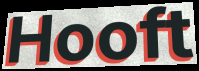
Hooft